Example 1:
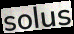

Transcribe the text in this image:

solus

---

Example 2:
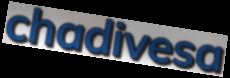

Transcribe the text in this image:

chadivesa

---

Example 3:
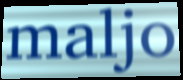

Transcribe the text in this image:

maljo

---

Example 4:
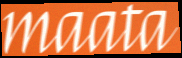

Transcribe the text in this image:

maata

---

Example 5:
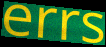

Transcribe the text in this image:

errs